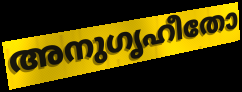
അനുഗൃഹീതോ